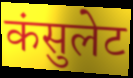
कंसुलेट